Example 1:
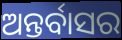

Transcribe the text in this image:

ଅନ୍ତର୍ବାସର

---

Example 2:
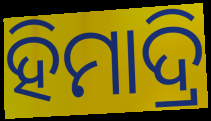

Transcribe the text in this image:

ହିମାଦ୍ରି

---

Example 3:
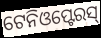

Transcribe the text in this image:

ଟେନିଓପ୍ଟେରସ୍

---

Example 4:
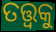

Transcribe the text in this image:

ତତ୍ତ୍ଵକୁ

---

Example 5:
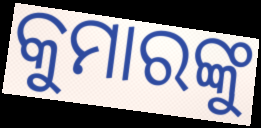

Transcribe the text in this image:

କୁମାରଙ୍କୁ